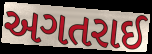
અગતરાઈ